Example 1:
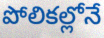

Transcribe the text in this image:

పోలికల్లోనే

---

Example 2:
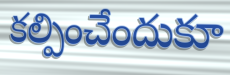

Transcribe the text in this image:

కల్పించేందుకూ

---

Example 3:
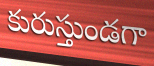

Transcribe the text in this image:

కురుస్తుండగా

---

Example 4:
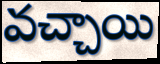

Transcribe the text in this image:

వచ్చాయి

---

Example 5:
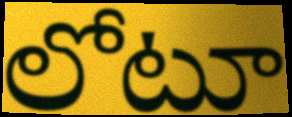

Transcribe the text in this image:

లోటూ